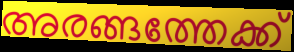
അരങ്ങത്തേക്ക്